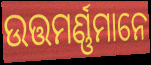
ଉତ୍ତମର୍ଣ୍ଣମାନେ